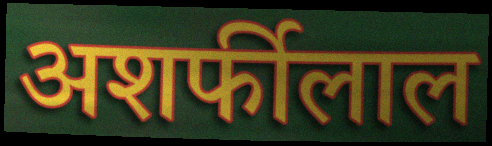
अशर्फीलाल